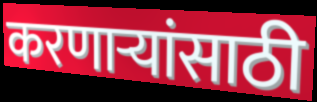
करणार्‍यांसाठी